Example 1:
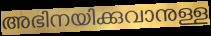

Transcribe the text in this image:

അഭിനയിക്കുവാനുള്ള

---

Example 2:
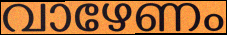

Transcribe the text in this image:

വാഴേണം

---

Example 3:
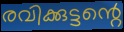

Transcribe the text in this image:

രവിക്കുട്ടന്റെ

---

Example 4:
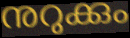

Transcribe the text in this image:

നുറുക്കും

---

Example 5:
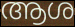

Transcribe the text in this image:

ആശ